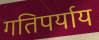
गतिपर्याय